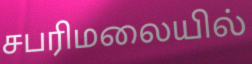
சபரிமலையில்